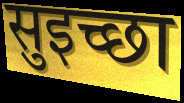
सुइच्छा